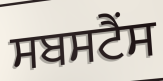
ਸਬਸਟੈਂਸ